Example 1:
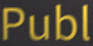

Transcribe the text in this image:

Publ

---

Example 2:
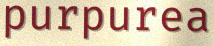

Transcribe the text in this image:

purpurea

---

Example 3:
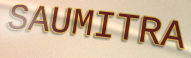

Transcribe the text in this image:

SAUMITRA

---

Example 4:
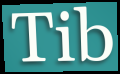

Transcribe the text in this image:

Tib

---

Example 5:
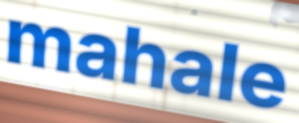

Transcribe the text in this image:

mahale